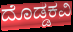
ದೊಡ್ಡಕವಿ